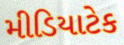
મીડિયાટેક